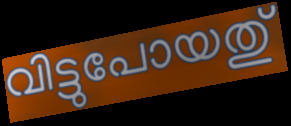
വിട്ടുപോയതു്